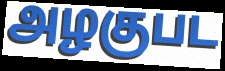
அழகுபட